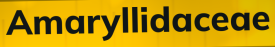
Amaryllidaceae